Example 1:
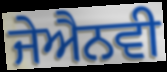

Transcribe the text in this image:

ਜੇਐਨਵੀ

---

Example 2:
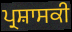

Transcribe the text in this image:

ਪ੍ਰਸ਼ਾਸਕੀ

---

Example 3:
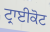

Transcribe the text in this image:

ਟ੍ਰਾਈਕੋਟ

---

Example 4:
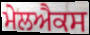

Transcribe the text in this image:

ਮੇਲਐਕਸ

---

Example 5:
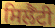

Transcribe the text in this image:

ਸਿਲੈਂਟੀ